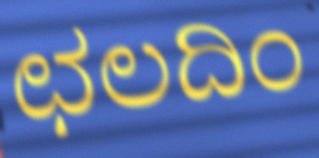
ಛಲದಿಂ